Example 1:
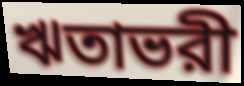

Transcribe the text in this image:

ঋতাভরী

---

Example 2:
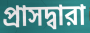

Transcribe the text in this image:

প্রাসদ্বারা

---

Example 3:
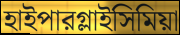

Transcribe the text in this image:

হাইপারগ্লাইসিমিয়া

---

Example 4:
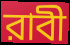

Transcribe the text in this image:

রাবী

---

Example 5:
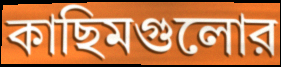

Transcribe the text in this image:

কাছিমগুলোর